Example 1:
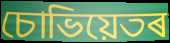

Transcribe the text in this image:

চোভিয়েতৰ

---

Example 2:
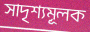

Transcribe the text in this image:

সাদৃশ্যমূলক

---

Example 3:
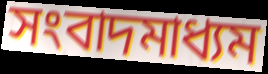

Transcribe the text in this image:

সংবাদমাধ্যম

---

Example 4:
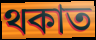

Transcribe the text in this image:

থকাত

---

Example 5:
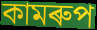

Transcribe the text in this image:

কামৰুপ